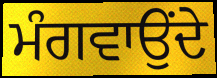
ਮੰਗਵਾਉਂਦੇ